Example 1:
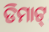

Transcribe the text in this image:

ଡିମାଟ୍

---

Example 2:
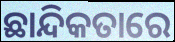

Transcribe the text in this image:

ଛାନ୍ଦିକତାରେ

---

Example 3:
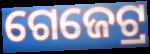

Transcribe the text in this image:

ଗେଜେଟ୍ର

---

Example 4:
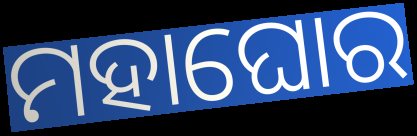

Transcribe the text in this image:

ମହାଘୋର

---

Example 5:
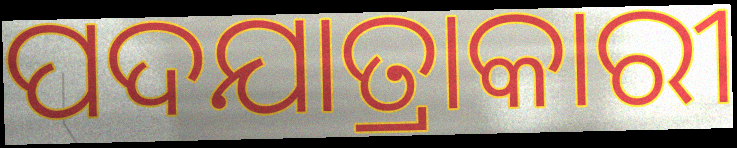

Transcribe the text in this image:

ପଦଯାତ୍ରାକାରୀ